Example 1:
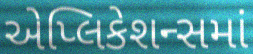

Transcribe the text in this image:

એપ્લિકેશન્સમાં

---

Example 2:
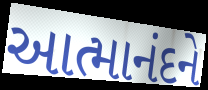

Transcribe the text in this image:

આત્માનંદને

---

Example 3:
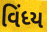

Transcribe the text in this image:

વિંધ્ય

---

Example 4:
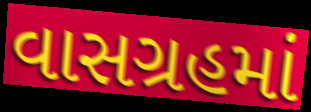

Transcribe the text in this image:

વાસગ્રહમાં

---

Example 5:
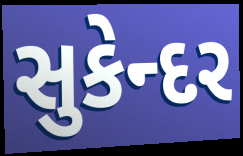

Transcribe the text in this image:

સુકેન્દર